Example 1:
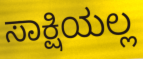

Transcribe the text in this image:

ಸಾಕ್ಷಿಯಲ್ಲ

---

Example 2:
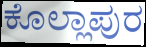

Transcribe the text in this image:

ಕೊಲ್ಲಾಪುರ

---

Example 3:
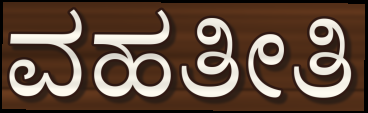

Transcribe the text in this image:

ವಹತೀತಿ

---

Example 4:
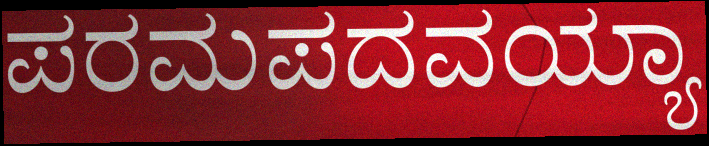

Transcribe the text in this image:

ಪರಮಪದವಯ್ಯಾ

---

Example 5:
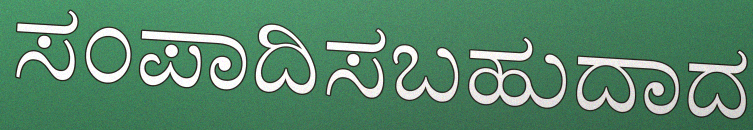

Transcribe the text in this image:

ಸಂಪಾದಿಸಬಹುದಾದ